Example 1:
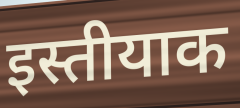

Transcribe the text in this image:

इस्तीयाक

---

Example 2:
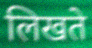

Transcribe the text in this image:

लिखते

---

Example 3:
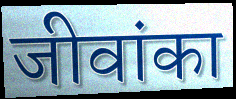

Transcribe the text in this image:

जीवांका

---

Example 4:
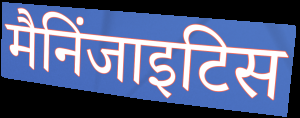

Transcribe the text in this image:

मैनिंजाइटिस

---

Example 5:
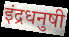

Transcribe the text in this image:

इंद्रधनुषी